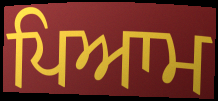
ਪਿਆਮ